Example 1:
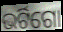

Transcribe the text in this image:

ଭର୍ଟିଗୋ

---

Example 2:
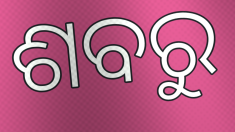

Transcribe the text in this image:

ଶବରୁ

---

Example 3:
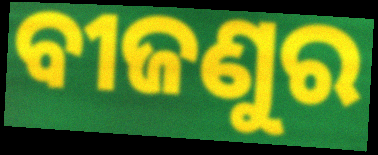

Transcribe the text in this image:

ବୀଜଣୁର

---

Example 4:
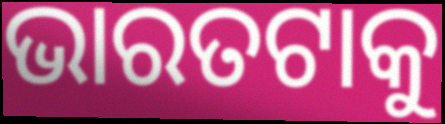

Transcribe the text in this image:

ଭାରତଟାକୁ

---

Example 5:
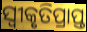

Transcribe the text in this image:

ସ୍ୱୀକୃତିପ୍ରାପ୍ତ